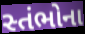
સ્તંભોના